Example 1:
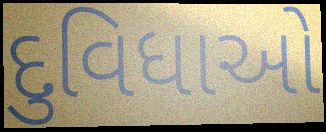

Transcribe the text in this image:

દુવિધાઓ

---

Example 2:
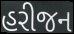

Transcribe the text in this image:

હરીજન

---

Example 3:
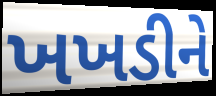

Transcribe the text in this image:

ખખડીને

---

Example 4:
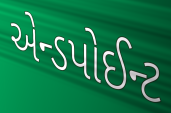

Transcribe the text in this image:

એન્ડપોઈન્ટ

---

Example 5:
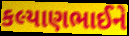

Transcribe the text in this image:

કલ્યાણભાઈને